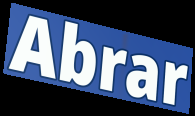
Abrar